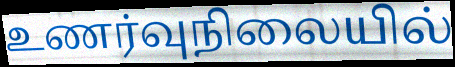
உணர்வுநிலையில்